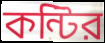
কন্টির